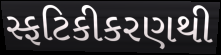
સ્ફટિકીકરણથી